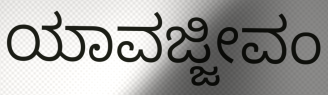
ಯಾವಜ್ಜೀವಂ